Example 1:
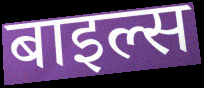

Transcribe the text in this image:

बाइल्स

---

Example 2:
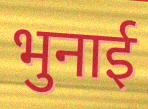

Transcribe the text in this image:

भुनाई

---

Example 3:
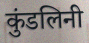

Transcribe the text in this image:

कुंडलिनी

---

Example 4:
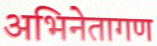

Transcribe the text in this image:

अभिनेतागण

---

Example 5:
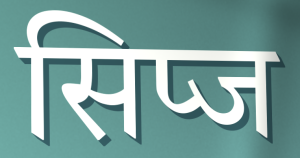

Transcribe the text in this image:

सिप्ज